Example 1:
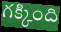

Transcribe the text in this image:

గక్కింది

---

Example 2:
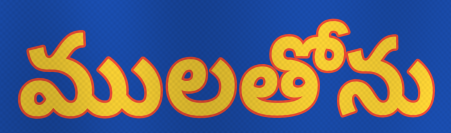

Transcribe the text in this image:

ములతోను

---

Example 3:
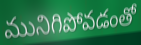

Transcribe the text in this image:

మునిగిపోవడంతో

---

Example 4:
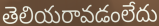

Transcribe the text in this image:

తెలియరావడంలేదు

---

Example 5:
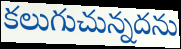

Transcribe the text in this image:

కలుగుచున్నదను